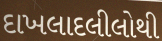
દાખલાદલીલોથી